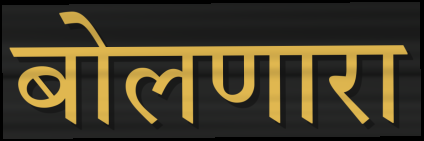
बोलणारा